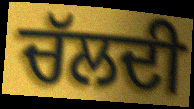
ਚੱਲਦੀ